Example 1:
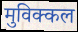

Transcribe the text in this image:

मुविक्कल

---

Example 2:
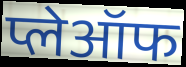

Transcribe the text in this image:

प्‍लेऑफ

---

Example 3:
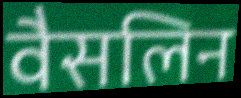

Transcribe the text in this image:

वैसलिन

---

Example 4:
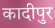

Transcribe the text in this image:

कादीपुर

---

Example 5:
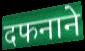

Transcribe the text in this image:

दफनाने